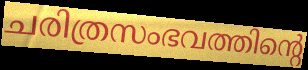
ചരിത്രസംഭവത്തിന്റെ